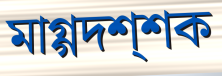
মাগ্গদশ্শক